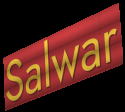
Salwar